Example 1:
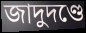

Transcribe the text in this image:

জাদুদণ্ডে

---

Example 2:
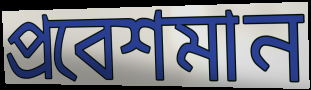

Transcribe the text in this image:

প্রবেশমান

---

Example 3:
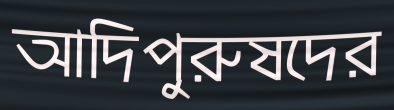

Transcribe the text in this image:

আদিপুরুষদের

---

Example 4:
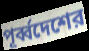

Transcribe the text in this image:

পূর্ব্বদেশের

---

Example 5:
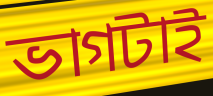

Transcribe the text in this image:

ভাগটাই